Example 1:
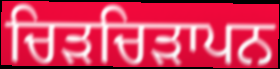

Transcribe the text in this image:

ਚਿੜਚਿੜਾਪਨ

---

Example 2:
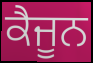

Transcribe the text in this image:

ਕੈਜੂਨ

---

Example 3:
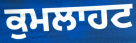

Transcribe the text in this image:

ਕੁਮਲਾਹਟ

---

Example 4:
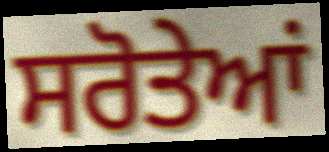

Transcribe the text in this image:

ਸਰੋਤੇਆਂ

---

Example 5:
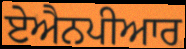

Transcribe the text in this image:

ਏਐਨਪੀਆਰ